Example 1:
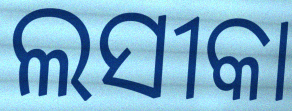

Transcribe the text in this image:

ଲସୀକା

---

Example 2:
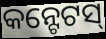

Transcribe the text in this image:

କନ୍ଟେଟସ୍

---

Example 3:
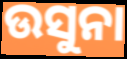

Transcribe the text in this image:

ଉସୁନା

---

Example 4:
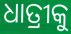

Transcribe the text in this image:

ଧାତ୍ରୀକୁ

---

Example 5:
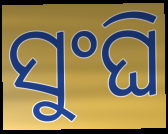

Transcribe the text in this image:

ସୁଂଘି